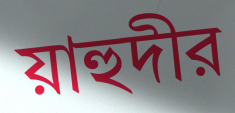
য়াহুদীর